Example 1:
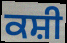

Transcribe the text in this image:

ਕਸ਼ੀ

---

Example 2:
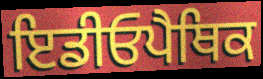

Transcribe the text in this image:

ਇਡੀਓਪੈਥਿਕ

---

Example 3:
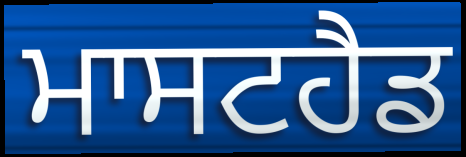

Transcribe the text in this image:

ਮਾਸਟਹੈਡ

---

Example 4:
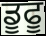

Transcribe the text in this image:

ਡੂਫੂ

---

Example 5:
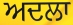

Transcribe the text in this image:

ਅਦਲਾ